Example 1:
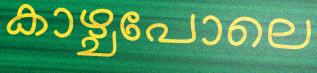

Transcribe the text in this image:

കാഴ്ചപോലെ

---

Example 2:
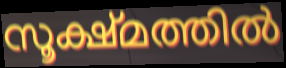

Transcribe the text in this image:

സൂക്ഷ്മത്തിൽ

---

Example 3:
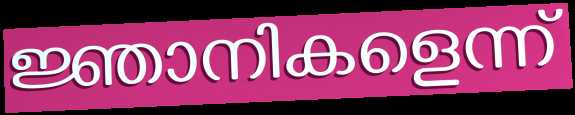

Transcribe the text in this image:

ജ്ഞാനികളെന്ന്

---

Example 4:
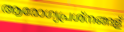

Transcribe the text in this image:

ആരോഗ്യപ്രശ്നങ്ങള്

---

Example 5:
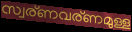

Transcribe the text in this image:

സ്വര്ണവര്ണമുള്ള